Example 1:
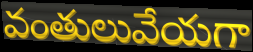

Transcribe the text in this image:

వంతులువేయగా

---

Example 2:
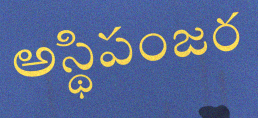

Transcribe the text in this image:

అస్థిపంజర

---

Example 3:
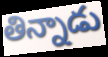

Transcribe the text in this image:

తిన్నాడు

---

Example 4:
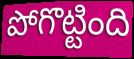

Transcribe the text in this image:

పోగొట్టింది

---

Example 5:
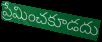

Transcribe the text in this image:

ప్రేమించకూడదు